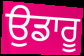
ਉਡਾਰੂ